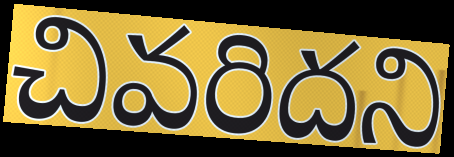
చివరిదని